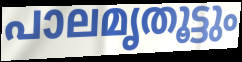
പാലമൃതൂട്ടും